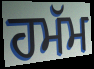
ਹਮੱਮ